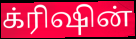
க்ரிஷின்